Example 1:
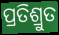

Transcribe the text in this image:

ପ୍ରତିଶ୍ରୁତ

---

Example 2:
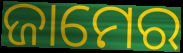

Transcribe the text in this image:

ଜାମେର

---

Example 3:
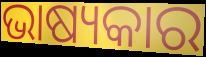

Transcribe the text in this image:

ଭାଷ୍ୟକାର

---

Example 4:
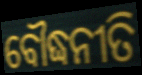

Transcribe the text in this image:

ବୌଦ୍ଧନୀତି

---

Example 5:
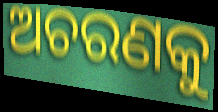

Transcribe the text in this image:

ଅଚରଣକୁ